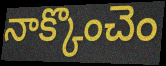
నాక్కొంచెం